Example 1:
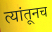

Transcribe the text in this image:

त्यांतूनच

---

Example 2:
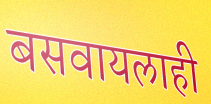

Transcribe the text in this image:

बसवायलाही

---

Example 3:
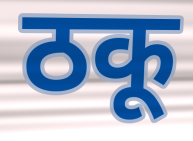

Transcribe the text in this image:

ठकू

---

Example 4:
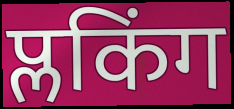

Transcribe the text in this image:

प्लकिंग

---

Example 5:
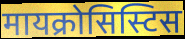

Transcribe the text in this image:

मायक्रोसिस्टिस